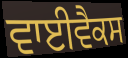
ਵਾਈਵੈਕਸ